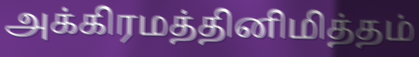
அக்கிரமத்தினிமித்தம்